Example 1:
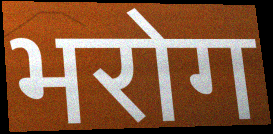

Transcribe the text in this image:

भरोग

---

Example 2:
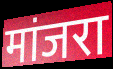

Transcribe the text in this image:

मांजरा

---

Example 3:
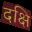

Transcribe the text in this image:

दक्षि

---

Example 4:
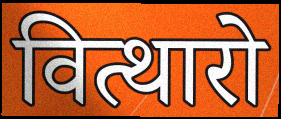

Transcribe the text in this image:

वित्थारो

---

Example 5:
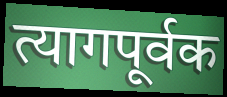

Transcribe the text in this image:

त्यागपूर्वक